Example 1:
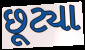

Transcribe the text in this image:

છૂટ્યા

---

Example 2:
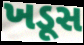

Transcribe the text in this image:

ખડૂસ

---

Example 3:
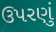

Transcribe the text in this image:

ઉપરણું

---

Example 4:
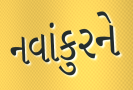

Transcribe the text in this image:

નવાંકુરને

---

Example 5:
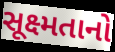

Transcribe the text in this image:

સૂક્ષ્મતાનો